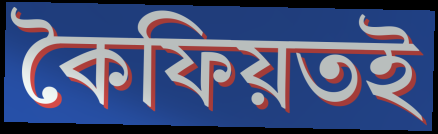
কৈফিয়তই